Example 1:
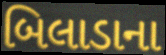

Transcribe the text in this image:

બિલાડાના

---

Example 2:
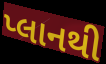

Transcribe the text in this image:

પ્લાનથી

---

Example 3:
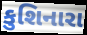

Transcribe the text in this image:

કુશિનારા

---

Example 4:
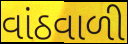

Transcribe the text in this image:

વાંઠવાળી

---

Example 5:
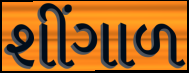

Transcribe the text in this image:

શીંગાળ